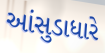
આંસુડાધારે